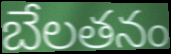
బేలతనం